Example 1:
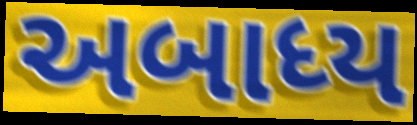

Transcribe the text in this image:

અબાધ્ય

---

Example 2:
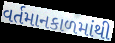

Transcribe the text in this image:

વર્તમાનકાળમાંથી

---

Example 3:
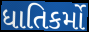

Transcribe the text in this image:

ધાતિકર્મો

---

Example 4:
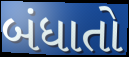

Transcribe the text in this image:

બંધાતો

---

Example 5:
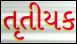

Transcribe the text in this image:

તૃતીયક